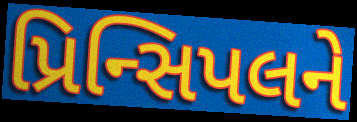
પ્રિન્સિપલને